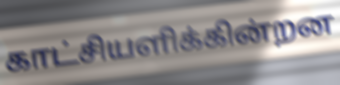
காட்சியளிக்கின்றன